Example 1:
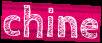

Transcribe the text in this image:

chine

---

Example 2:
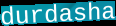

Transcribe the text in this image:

durdasha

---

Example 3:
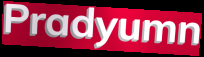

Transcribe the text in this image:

Pradyumn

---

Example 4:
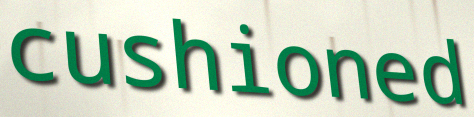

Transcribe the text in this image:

cushioned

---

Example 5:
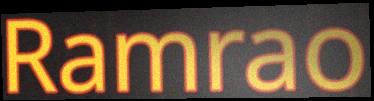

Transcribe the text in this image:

Ramrao